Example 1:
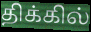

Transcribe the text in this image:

திக்கில்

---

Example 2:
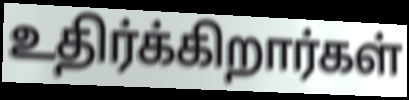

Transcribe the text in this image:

உதிர்க்கிறார்கள்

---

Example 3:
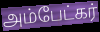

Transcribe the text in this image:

அம்பேட்கர்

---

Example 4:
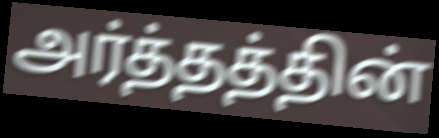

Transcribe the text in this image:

அர்த்தத்தின்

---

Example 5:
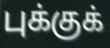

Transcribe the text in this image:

புக்குக்